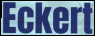
Eckert